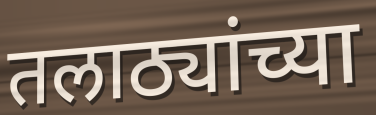
तलाठ्यांच्या